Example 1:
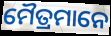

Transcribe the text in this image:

ମୈତ୍ରମାନେ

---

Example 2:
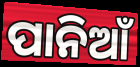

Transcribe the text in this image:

ପାନିଆଁ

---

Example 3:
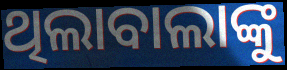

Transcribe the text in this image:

ଥିଲାବାଲାଙ୍କୁ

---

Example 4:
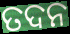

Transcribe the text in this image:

ତଦନ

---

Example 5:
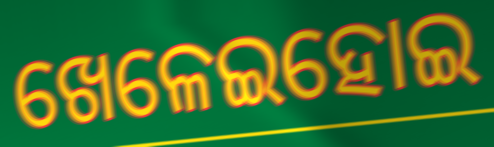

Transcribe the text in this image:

ଖେଳେଇହୋଇ